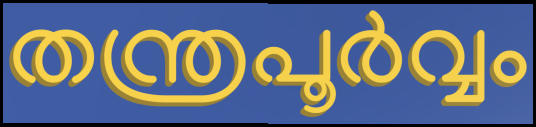
തന്ത്രപൂർവ്വം